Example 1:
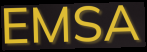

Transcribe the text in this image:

EMSA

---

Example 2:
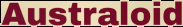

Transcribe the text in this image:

Australoid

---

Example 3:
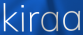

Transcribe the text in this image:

kiraa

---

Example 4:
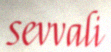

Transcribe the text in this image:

sevvali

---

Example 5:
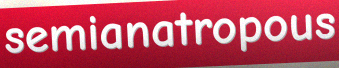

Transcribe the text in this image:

semianatropous